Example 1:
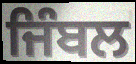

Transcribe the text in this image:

ਜਿੰਬਲ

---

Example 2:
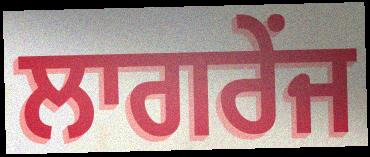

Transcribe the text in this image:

ਲਾਗਰੇਂਜ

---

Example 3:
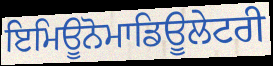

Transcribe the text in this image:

ਇਮਿਊਨੋਮਾਡਿਊਲੇਟਰੀ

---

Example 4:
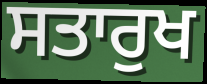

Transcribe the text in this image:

ਸਤਾਰੁਖ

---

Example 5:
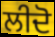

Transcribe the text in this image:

ਲੀਦੋ